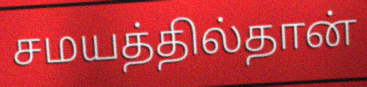
சமயத்தில்தான்